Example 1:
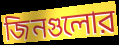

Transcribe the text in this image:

জিনগুলোর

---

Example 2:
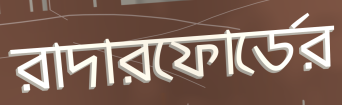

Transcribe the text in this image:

রাদারফোর্ডের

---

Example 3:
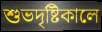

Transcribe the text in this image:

শুভদৃষ্টিকালে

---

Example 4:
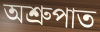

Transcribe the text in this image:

অশ্রুপাত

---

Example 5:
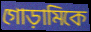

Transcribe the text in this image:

গোড়ামিকে